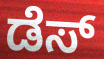
ಡೆಸ್